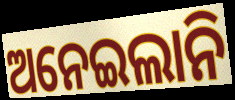
ଅନେଇଲାନି